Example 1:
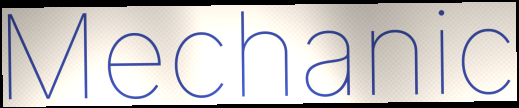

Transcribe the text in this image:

Mechanic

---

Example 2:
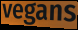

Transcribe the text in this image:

vegans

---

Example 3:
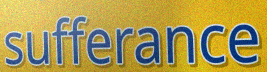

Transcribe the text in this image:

sufferance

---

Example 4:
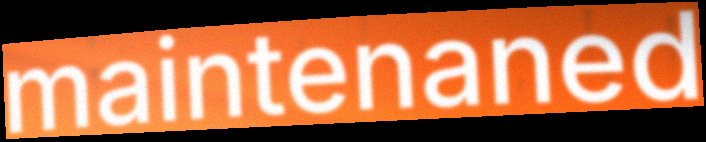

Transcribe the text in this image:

maintenaned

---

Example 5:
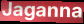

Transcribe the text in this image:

Jaganna